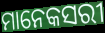
ମାନେକସରୀ